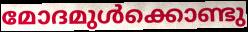
മോദമുൾക്കൊണ്ടു